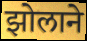
झोलाने